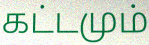
கட்டமும்